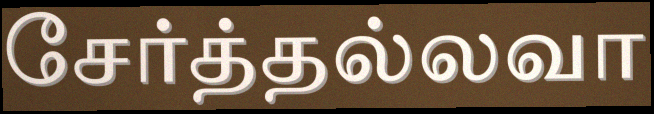
சேர்த்தல்லவா